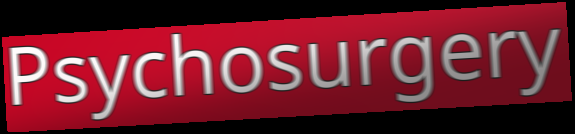
Psychosurgery